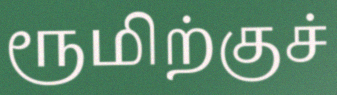
ரூமிற்குச்